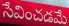
సేవించడమే